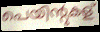
പെയിന്റുകള്